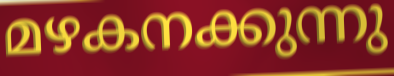
മഴകനക്കുന്നു